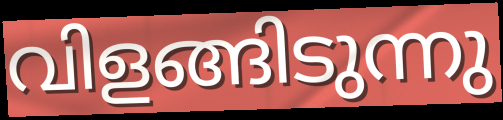
വിളങ്ങിടുന്നു